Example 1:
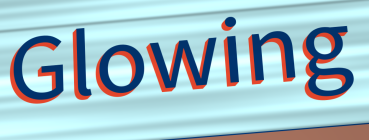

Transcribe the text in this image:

Glowing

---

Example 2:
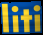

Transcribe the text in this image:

liti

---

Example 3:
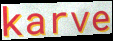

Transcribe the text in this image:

karve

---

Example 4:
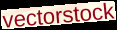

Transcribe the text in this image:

vectorstock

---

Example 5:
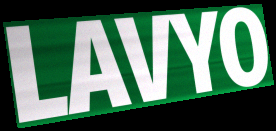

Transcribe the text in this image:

LAVYO